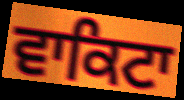
ਵਾਕਿਟਾ